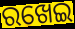
ରଖେଇ